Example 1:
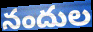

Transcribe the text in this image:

నందుల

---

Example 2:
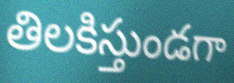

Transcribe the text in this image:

తిలకిస్తుండగా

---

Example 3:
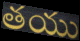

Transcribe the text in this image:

తయు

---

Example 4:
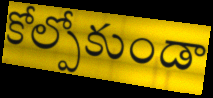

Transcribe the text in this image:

కోల్పోకుండా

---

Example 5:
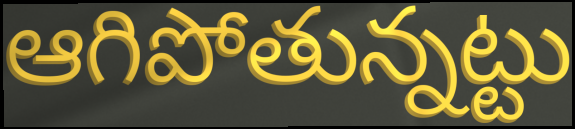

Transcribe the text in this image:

ఆగిపోతున్నట్టు